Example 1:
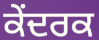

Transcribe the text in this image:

ਕੇਂਦਰਕ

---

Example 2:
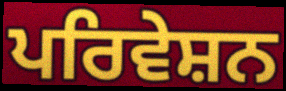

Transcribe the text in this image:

ਪਰਿਵੇਸ਼ਨ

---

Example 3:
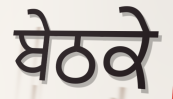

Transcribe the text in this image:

ਬੇਠਕੇ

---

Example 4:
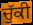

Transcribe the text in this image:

ਚੁੱਕੀ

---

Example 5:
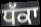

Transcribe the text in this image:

ਧੱਕਾ